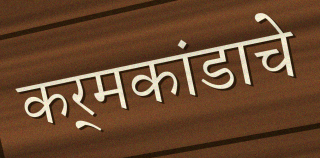
कर्मकांडाचे